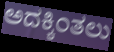
ಅದಕ್ಕಿಂತಲು